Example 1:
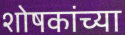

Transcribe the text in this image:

शोषकांच्या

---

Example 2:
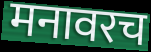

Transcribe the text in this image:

मनावरच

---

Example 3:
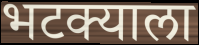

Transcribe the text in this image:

भटक्याला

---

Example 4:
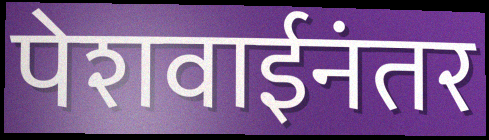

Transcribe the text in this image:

पेशवाईनंतर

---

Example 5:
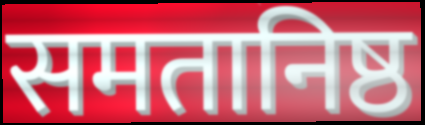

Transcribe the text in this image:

समतानिष्ठ